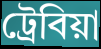
ট্রেবিয়া